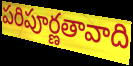
పరిపూర్ణతావాది